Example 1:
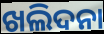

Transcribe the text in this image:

ଖଲିଦନା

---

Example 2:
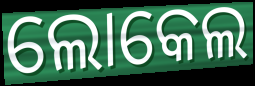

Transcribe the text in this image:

ଲୋକେଲ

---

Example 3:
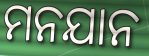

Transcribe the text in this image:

ମନଯାନ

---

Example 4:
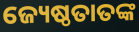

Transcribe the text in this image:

ଜ୍ୟେଷ୍ଠତାତଙ୍କ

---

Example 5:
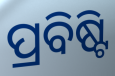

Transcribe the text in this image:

ପ୍ରବିଷ୍ଟି